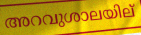
അറവുശാലയില്